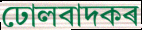
ঢোলবাদকৰ